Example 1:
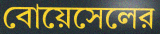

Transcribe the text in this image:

বোয়েসেলের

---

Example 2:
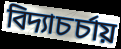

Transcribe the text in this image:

বিদ্যাচর্চায়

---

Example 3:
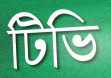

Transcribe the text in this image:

টিভি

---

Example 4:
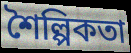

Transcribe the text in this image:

শৈল্পিকতা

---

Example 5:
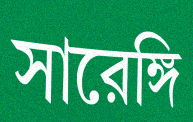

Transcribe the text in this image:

সারেঙ্গি